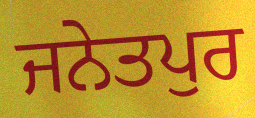
ਜਨੇਤਪੁਰ